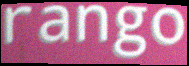
rango